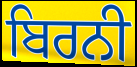
ਬਿਰਨੀ